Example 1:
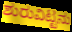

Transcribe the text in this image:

ಶುರುವಿಟ್ಟನು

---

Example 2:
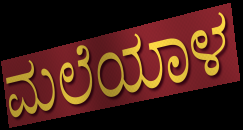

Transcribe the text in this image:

ಮಲೆಯಾಳ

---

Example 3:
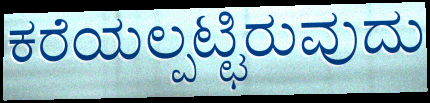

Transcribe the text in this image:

ಕರೆಯಲ್ಪಟ್ಟಿರುವುದು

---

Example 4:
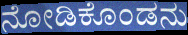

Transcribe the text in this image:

ನೋಡಿಕೊಂಡನು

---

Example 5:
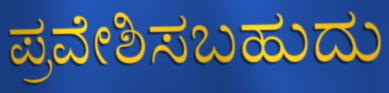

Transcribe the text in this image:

ಪ್ರವೇಶಿಸಬಹುದು